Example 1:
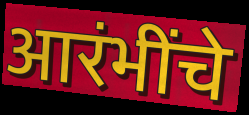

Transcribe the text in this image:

आरंभींचे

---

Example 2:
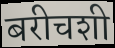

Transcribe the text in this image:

बरीचशी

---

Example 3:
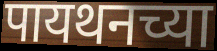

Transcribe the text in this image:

पायथनच्या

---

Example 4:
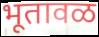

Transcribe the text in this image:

भूतावळ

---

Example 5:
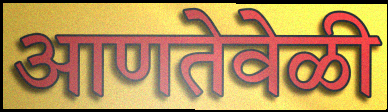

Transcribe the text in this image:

आणतेवेळी